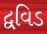
દ્વવિડ